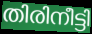
തിരിനീട്ടി